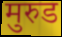
मुरुड